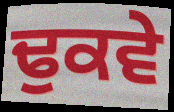
ਢੁਕਵੇ